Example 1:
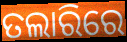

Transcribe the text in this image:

ତଲାରିରେ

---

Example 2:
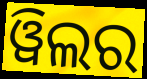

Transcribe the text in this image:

ୱିଲର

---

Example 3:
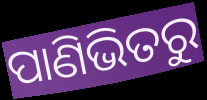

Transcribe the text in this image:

ପାଣିଭିତରୁ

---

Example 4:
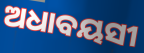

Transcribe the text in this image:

ଅଧାବୟସୀ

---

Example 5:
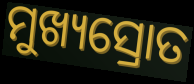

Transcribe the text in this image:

ମୁଖ୍ୟସ୍ରୋତ